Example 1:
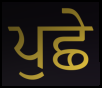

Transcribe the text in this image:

ਪੁਛੇ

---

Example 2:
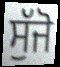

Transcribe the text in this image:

ਸੁੱਜੋ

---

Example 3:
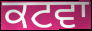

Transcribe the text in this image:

ਕਟਵਾ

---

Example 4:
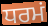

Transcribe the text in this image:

ਧਰਮਂ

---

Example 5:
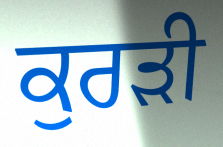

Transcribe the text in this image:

ਕੁਰੜੀ